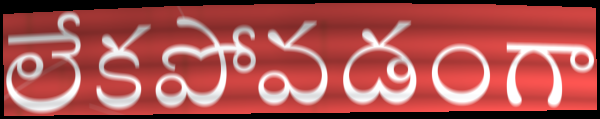
లేకపోవడంగా